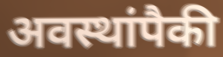
अवस्थांपैकी